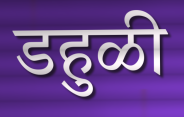
डहुळी